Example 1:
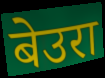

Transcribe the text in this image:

बेउरा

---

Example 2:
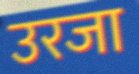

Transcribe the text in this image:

उरजा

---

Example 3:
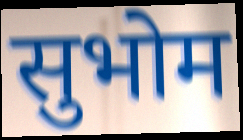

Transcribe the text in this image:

सुभोम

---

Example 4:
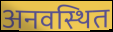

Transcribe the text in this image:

अनवस्थित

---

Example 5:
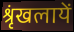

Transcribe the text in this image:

श्रृंखलायें